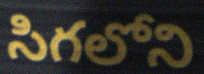
సిగలోని